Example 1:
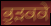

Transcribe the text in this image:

ਭੁੜਕਕੇ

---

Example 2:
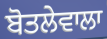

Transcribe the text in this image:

ਬੋਤਲੇਵਾਲਾ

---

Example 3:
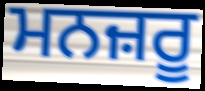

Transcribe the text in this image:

ਮਨਜ਼ਰੂ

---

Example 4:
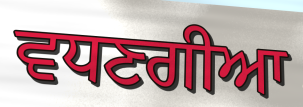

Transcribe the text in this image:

ਵਧਣਗੀਆ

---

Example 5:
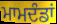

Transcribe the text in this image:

ਮਾਮਦੰਡਾਂ